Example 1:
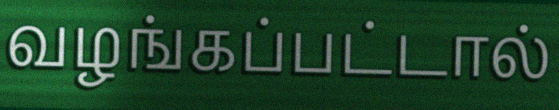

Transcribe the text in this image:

வழங்கப்பட்டால்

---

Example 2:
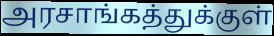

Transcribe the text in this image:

அரசாங்கத்துக்குள்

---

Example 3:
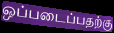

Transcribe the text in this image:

ஒப்படைப்பதற்கு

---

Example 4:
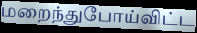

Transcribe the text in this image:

மறைந்துபோய்விட்ட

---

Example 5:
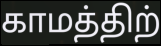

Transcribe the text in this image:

காமத்திற்